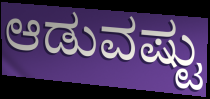
ಆಡುವಷ್ಟು